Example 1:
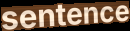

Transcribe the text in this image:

sentence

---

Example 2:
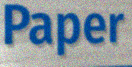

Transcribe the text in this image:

Paper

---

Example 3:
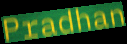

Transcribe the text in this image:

Pradhan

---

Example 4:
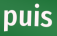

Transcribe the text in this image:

puis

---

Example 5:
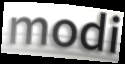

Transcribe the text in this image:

modi